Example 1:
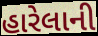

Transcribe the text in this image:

હારેલાની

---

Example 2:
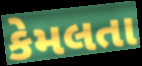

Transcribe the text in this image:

કેમલતા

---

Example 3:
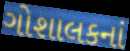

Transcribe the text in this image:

ગોશાલકનાં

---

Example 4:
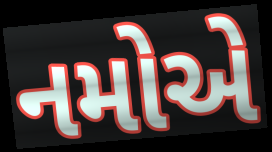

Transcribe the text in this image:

નમોએ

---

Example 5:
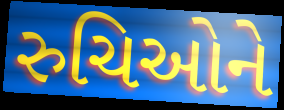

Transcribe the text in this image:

રુચિઓને